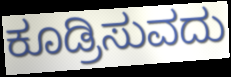
ಕೂಡ್ರಿಸುವದು